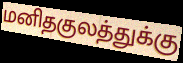
மனிதகுலத்துக்கு